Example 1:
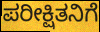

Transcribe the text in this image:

ಪರೀಕ್ಷಿತನಿಗೆ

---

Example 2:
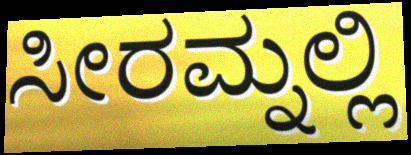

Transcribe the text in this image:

ಸೀರಮ್ನಲ್ಲಿ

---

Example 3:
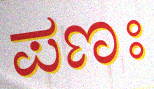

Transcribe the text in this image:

ಪಣಃ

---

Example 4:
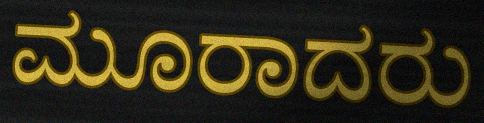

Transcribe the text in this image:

ಮೂರಾದರು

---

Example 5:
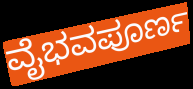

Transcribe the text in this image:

ವೈಭವಪೂರ್ಣ